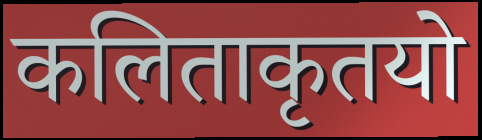
कलिताकृतयो